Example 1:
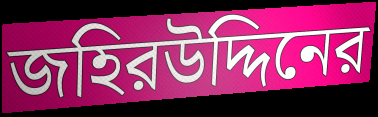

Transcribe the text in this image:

জহিরউদ্দিনের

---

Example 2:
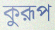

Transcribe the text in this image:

কুরূপ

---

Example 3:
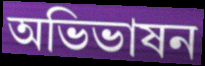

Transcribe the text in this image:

অভিভাষন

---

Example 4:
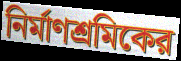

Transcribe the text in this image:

নির্মাণশ্রমিকের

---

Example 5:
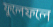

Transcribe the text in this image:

ফুলেফলে